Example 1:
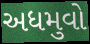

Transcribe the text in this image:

અધમુવો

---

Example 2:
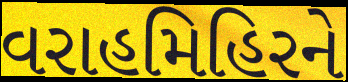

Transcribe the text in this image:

વરાહમિહિરને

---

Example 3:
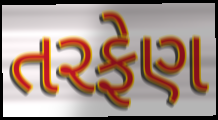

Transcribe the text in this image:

તરફેણ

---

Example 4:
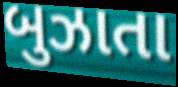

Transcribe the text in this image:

બુઝાતા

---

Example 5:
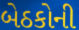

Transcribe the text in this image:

બેઠકોની